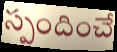
స్పందించే